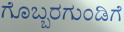
ಗೊಬ್ಬರಗುಂಡಿಗೆ